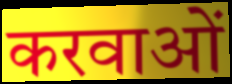
करवाओं